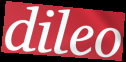
dileo